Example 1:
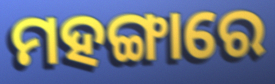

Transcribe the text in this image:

ମହଙ୍ଗାରେ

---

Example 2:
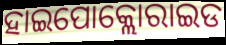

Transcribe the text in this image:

ହାଇପୋକ୍ଲୋରାଇଡ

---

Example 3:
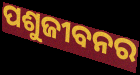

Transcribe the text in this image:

ପଶୁଜୀବନର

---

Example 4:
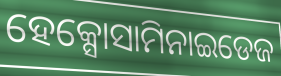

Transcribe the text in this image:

ହେକ୍ସୋସାମିନାଇଡେଜ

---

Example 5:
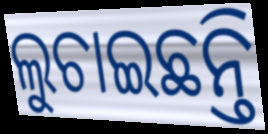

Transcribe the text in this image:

ଲୁଚାଇଛନ୍ତି